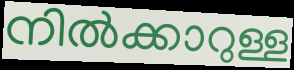
നിൽക്കാറുള്ള